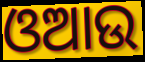
ଓଆଉ